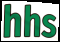
hhs